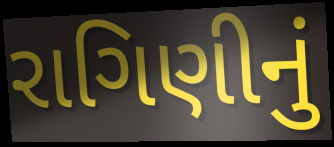
રાગિણીનું